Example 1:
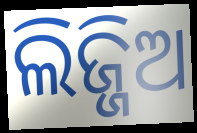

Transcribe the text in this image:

ଲିଜ୍ଜିଅ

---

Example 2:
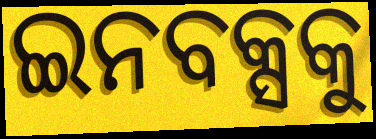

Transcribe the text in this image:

ଇନବକ୍ସକୁ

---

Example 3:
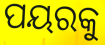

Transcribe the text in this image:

ପୟରକୁ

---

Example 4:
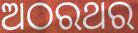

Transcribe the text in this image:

ଅଠରଥର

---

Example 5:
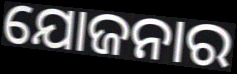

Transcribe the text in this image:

ଯୋଜନାର